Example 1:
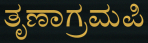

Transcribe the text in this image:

ತೃಣಾಗ್ರಮಪಿ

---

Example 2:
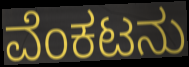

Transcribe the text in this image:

ವೆಂಕಟನು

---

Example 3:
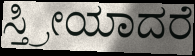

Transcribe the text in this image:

ಸ್ತ್ರೀಯಾದರೆ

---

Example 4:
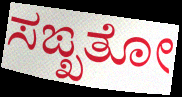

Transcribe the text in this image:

ಸಙ್ಖತೋ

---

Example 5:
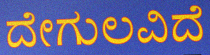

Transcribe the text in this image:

ದೇಗುಲವಿದೆ